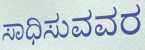
ಸಾಧಿಸುವವರ